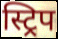
स्ट्रिप